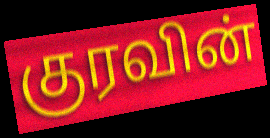
குரவின்